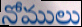
నోములు